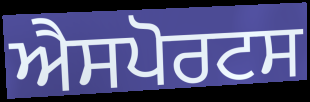
ਐਸਪੋਰਟਸ